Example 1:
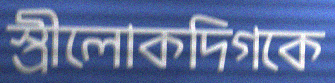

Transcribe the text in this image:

স্ত্রীলোকদিগকে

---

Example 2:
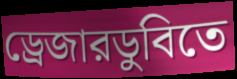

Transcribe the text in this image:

ড্রেজারডুবিতে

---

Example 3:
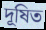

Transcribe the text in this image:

দূষিত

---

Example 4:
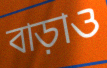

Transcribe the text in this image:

বাড়াও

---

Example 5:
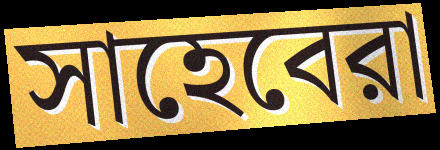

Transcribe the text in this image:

সাহেবেরা